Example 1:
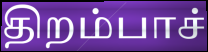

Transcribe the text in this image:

திறம்பாச்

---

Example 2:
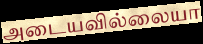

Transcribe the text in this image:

அடையவில்லையா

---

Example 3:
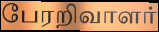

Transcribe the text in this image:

பேரறிவாளர்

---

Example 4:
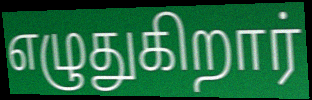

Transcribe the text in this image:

எழுதுகிறார்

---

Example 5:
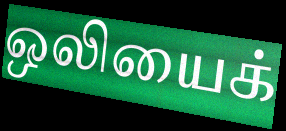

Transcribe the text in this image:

ஒலியைக்